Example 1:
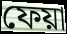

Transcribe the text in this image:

ফেয়া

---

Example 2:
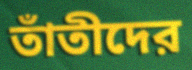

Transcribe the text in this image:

তাঁতীদের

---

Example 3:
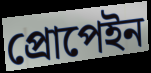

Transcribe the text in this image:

প্রোপেইন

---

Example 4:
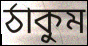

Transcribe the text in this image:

ঠাকুম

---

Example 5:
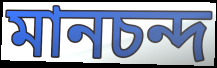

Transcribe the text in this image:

মানচন্দ